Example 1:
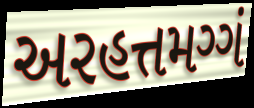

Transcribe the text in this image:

અરહત્તમગ્ગં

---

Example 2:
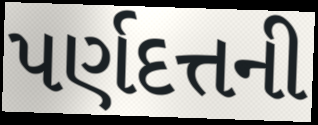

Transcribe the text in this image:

પર્ણદત્તની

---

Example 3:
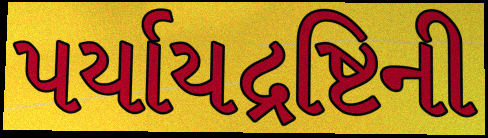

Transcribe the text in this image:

પર્યાયદ્રષ્ટિની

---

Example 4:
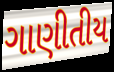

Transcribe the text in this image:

ગાણીતીય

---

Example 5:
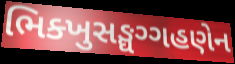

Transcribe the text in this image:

ભિક્ખુસઙ્ઘગ્ગહણેન